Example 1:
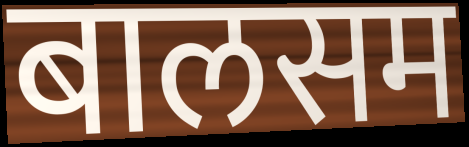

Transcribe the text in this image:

बालसम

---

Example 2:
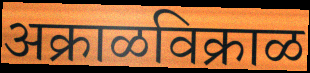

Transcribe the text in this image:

अक्राळविक्राळ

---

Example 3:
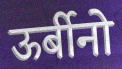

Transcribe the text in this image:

ऊर्बीनो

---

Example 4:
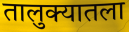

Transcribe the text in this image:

तालुक्यातला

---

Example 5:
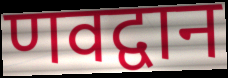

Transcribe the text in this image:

णवद्वान